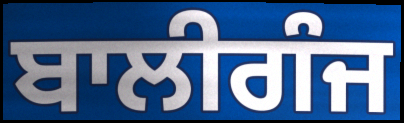
ਬਾਲੀਗੰਜ